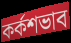
কর্কশভাব